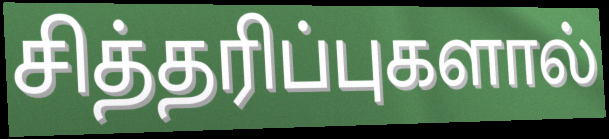
சித்தரிப்புகளால்